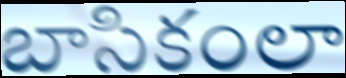
బాసికంలా